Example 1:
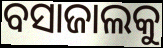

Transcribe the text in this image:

ବସାଜାଲକୁ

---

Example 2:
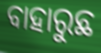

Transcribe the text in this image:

ବାହାରୁଛ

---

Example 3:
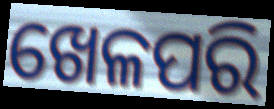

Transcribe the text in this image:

ଖେଳପରି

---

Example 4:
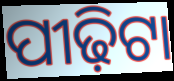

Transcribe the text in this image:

ପୀଢ଼ିଟା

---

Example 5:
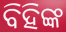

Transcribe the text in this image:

ବିହିଙ୍କ